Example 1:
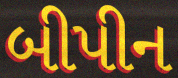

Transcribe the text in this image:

બીપીન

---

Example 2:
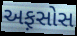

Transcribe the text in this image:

અફ઼સોસ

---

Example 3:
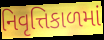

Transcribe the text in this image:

નિવૃત્તિકાળમાં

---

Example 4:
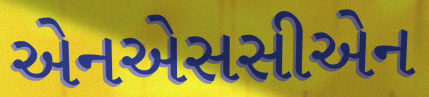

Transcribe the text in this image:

એનએસસીએન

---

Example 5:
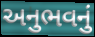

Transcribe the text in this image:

અનુભવનું